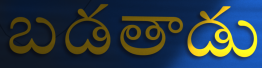
బడతాడు